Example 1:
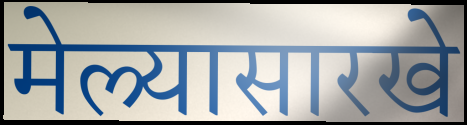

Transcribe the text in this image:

मेल्यासारखे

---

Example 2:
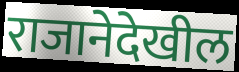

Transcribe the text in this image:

राजानेदेखील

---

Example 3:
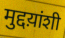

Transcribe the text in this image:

मुद्दय़ांशी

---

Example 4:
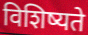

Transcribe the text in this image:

विशिष्यते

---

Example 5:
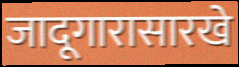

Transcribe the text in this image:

जादूगारासारखे